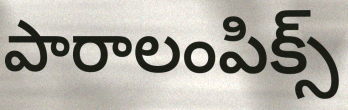
పారాలంపిక్స్